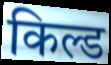
किल्ड